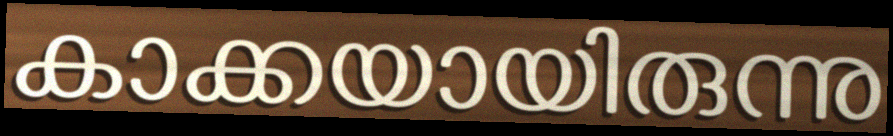
കാക്കയായിരുന്നു